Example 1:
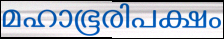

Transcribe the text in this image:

മഹാഭൂരിപക്ഷം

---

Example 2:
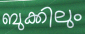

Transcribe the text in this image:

ബുക്കിലും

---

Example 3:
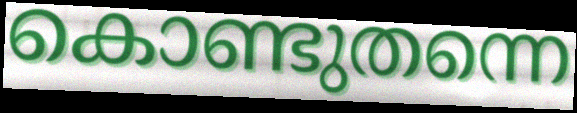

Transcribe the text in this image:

കൊണ്ടുതന്നെ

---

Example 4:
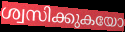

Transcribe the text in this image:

ശ്വസിക്കുകയോ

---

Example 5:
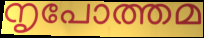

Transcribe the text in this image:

നൃപോത്തമ